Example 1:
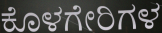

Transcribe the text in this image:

ಕೊಳಗೇರಿಗಳ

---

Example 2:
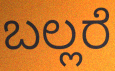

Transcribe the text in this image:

ಬಲ್ಲರೆ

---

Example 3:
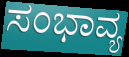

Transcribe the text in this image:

ಸಂಭಾವ್ಯ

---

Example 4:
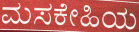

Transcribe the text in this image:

ಮಸಕೇಹಿಯ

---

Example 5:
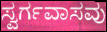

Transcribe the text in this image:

ಸ್ವರ್ಗವಾಸವು